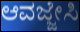
ಆವಜ್ಜೇಸಿ